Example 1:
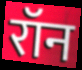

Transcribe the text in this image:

रॉन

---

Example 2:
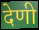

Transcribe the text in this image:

देणी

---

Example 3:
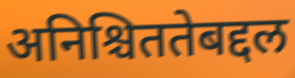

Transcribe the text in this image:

अनिश्चिततेबद्दल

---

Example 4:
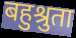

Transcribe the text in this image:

बहुश्रुता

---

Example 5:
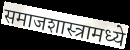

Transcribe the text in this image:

समाजशास्त्रामध्ये